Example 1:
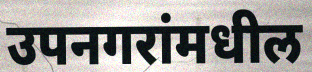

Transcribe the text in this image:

उपनगरांमधील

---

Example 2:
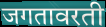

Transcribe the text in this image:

जगतावरती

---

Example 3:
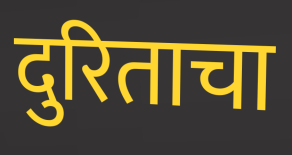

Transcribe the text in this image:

दुरिताचा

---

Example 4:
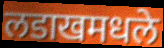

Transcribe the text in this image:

लडाखमधले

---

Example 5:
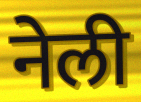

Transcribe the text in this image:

नेली